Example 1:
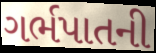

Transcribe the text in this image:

ગર્ભપાતની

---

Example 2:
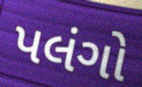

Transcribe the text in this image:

પલંગો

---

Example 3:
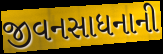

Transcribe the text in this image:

જીવનસાધનાની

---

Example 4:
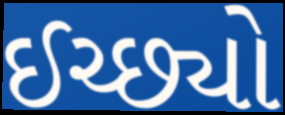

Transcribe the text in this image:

ઈચ્છ્યો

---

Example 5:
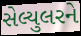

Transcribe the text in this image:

સેલ્યુલરને